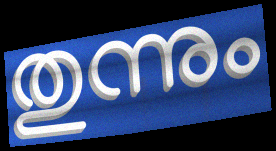
തുന്നും